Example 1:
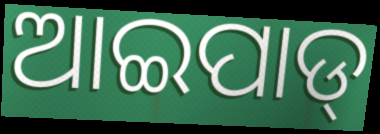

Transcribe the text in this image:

ଆଇପାଡ୍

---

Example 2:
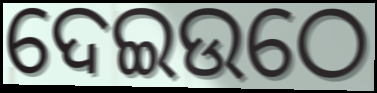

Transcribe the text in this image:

ଦେଇଉଠେ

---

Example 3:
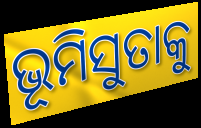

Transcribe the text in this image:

ଭୂମିସୁତାକୁ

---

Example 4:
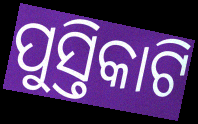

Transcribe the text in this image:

ପୁସ୍ତିକାଟି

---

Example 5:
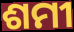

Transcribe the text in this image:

ଶମୀ